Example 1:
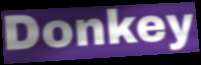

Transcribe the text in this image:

Donkey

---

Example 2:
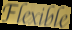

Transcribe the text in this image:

Flexible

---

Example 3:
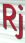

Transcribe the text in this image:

Rj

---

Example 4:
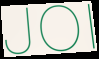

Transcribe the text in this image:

JOI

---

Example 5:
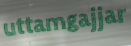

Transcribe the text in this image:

uttamgajjar